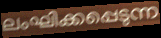
ലംഘിക്കപ്പെടുന്ന